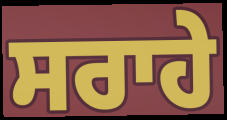
ਸਰਾਹੇ